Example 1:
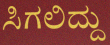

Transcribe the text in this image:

ಸಿಗಲಿದ್ದು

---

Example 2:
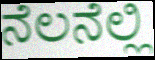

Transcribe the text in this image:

ನೆಲನೆಲ್ಲಿ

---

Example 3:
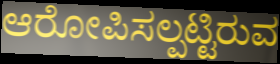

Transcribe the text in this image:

ಆರೋಪಿಸಲ್ಪಟ್ಟಿರುವ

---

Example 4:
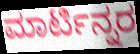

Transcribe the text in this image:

ಮಾರ್ಟಿನ್ನರ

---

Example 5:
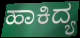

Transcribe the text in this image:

ಹಾಕಿದ್ಯ